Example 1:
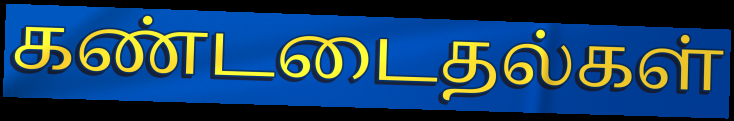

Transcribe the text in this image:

கண்டடைதல்கள்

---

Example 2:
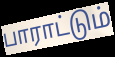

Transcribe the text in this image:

பாராட்டும்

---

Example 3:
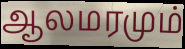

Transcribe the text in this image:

ஆலமரமும்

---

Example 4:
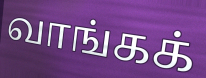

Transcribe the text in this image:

வாங்கக்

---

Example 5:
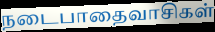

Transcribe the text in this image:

நடைபாதைவாசிகள்